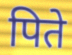
पिते